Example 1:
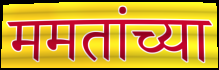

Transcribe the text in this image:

ममतांच्या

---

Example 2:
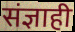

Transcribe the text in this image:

संज्ञाही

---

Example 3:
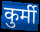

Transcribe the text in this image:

कुर्मी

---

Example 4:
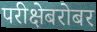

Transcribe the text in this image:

परीक्षेबरोबर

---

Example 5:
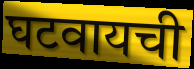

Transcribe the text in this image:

घटवायची